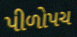
પીળોપચ